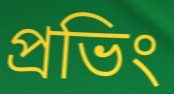
প্রভিং